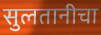
सुलतानीचा